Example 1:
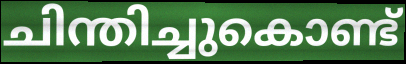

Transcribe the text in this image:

ചിന്തിച്ചുകൊണ്ട്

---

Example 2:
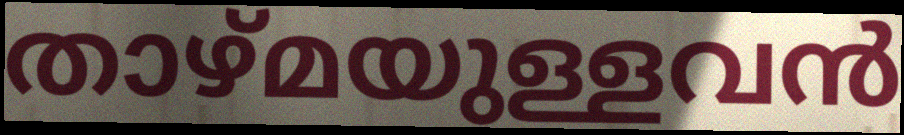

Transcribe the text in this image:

താഴ്മയുള്ളവൻ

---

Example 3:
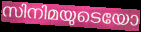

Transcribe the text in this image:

സിനിമയുടെയോ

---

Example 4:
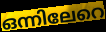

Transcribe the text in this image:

ഒന്നിലേറെ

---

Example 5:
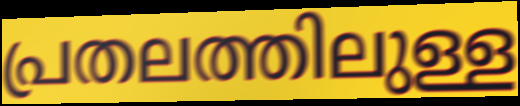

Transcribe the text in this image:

പ്രതലത്തിലുള്ള